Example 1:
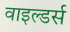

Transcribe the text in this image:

वाइल्डर्स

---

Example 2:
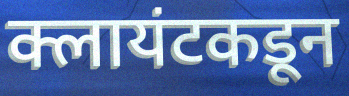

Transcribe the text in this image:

क्लायंटकडून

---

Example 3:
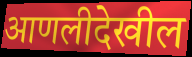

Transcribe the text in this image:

आणलीदेखील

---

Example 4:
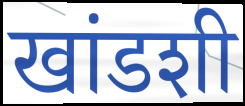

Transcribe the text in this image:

खांडशी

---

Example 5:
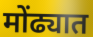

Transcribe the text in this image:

मोंढ्यात